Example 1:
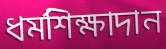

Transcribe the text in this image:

ধর্মশিক্ষাদান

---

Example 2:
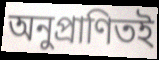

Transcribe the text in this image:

অনুপ্রাণিতই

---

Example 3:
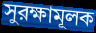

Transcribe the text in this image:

সুরক্ষামূলক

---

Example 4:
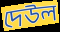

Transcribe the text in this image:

দেউল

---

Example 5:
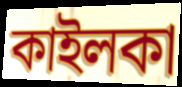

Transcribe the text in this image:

কাইলকা